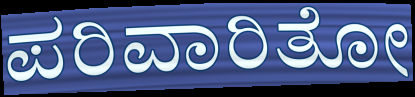
ಪರಿವಾರಿತೋ